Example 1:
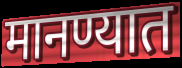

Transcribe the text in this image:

मानण्यात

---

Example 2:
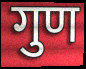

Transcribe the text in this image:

गुण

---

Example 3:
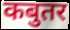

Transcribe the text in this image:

कबुतर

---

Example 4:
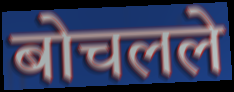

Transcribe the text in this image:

बोचलले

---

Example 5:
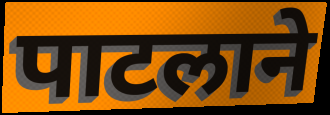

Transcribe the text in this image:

पाटलाने